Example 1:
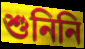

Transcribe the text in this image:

শুনিনি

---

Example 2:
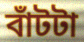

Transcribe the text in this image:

বাঁটটা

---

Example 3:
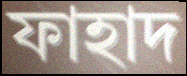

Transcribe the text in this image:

ফাহাদ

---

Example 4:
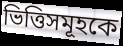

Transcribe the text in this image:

ভিত্তিসমূহকে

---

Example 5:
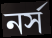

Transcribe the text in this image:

নর্স